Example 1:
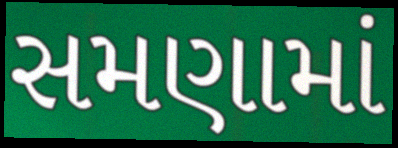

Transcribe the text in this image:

સમણામાં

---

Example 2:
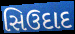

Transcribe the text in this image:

સિઉદાદ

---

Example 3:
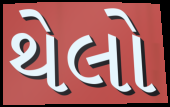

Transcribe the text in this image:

થેલો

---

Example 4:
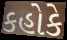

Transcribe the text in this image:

કહોકે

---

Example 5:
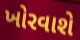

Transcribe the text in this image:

ખોરવાશે